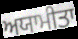
ਅਯਾਮੀਤਾ